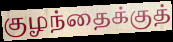
குழந்தைக்குத்